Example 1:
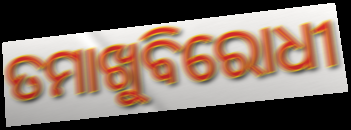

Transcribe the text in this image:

ତମାଖୁବିରୋଧୀ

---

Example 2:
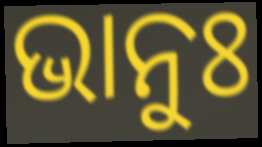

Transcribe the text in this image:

ଭାନୁଃ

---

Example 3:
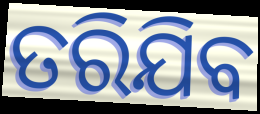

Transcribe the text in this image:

ତରିଯିବ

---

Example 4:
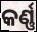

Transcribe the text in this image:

କର୍ଣ୍ଣ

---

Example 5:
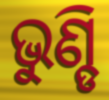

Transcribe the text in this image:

ଭୁଣ୍ଡି